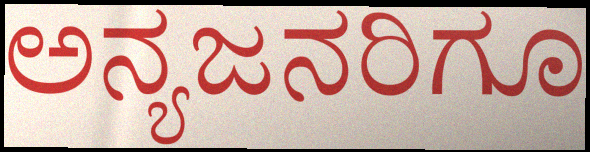
ಅನ್ಯಜನರಿಗೂ